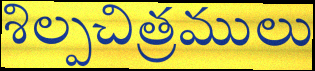
శిల్పచిత్రములు